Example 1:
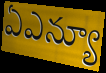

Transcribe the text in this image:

ఏఎన్యూ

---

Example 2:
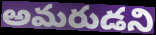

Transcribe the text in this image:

అమరుడని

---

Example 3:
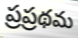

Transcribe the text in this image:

ప్రప్రథమ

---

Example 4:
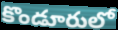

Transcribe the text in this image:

కొండూరులో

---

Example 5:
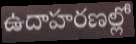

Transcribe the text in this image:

ఉదాహరణల్లో